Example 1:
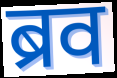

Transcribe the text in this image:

ब्रव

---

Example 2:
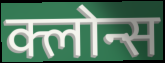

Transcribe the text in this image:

क्लोन्स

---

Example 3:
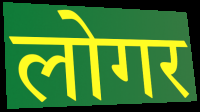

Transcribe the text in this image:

लोगर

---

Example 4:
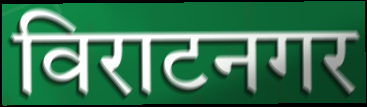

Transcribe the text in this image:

विराटनगर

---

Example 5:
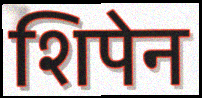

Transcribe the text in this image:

शिपेन